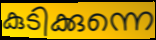
കുടിക്കുന്നെ